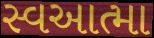
સ્વઆત્મા